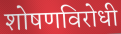
शोषणविरोधी